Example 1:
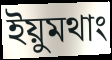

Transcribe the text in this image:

ইয়ুমথাং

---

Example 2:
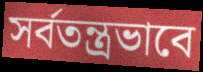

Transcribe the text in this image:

সর্বতন্ত্রভাবে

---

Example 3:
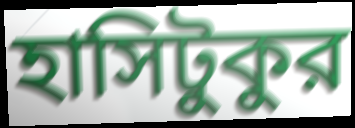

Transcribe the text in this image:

হাসিটুকুর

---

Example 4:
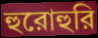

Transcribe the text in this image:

হুরোহুরি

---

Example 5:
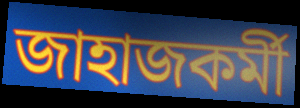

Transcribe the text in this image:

জাহাজকর্মী